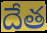
దేత